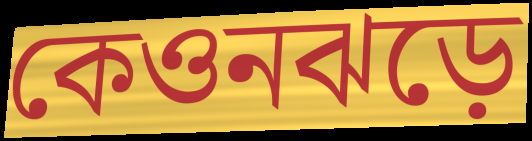
কেওনঝড়ে